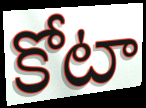
కోటా